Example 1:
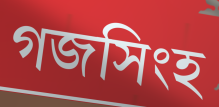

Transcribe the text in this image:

গজসিংহ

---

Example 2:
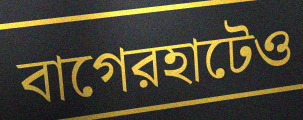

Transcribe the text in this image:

বাগেরহাটেও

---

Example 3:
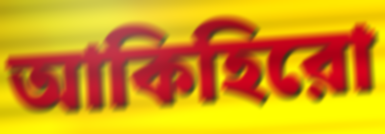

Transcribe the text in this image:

আকিহিরো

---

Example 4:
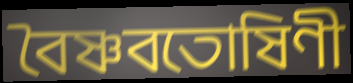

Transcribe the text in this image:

বৈষ্ণবতোষিণী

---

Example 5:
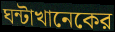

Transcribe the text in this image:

ঘন্টাখানেকের